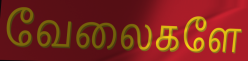
வேலைகளே